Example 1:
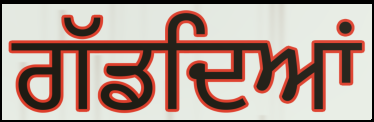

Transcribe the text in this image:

ਗੱਡਦਿਆਂ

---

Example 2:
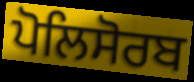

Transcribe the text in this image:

ਪੋਲਿਸੋਰਬ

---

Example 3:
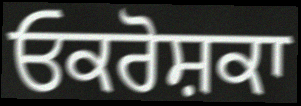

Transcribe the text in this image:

ਓਕਰੋਸ਼ਕਾ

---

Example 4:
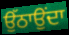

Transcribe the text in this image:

ਉੱਠਾਉਂਦਾ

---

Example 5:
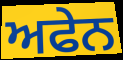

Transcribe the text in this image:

ਅਫੇਨ